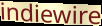
indiewire